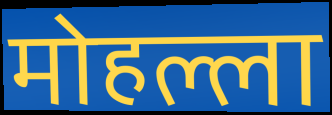
मोहल्‍ला